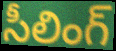
సీలింగ్